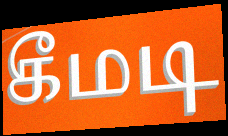
கீமடி